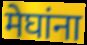
मेघांना